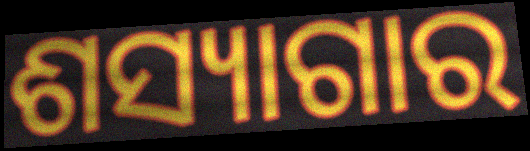
ଶସ୍ୟାଗାର